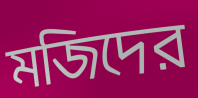
মজিদের